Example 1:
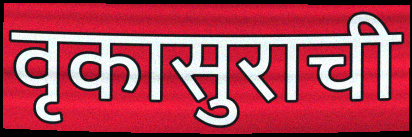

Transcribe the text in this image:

वृकासुराची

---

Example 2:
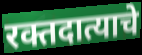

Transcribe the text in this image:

रक्तदात्याचे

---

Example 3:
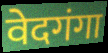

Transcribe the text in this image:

वेदगंगा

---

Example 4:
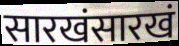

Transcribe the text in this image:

सारखंसारखं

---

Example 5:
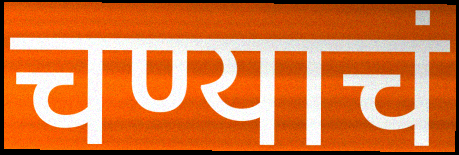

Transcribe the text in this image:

चण्याचं